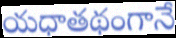
యధాతథంగానే